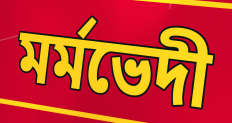
মৰ্মভেদী